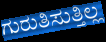
ಗುರುತಿಸುತ್ತಿಲ್ಲ